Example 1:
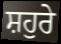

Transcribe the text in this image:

ਸ਼ਹੁਰੇ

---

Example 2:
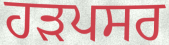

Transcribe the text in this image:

ਹੜਪਸਰ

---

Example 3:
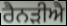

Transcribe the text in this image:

ਰੈਨੜੀਐ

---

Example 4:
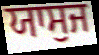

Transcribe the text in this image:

ਯਾਸੁਜ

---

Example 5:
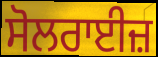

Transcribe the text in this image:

ਸੋਲਰਾਈਜ਼